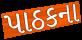
પાઠકના